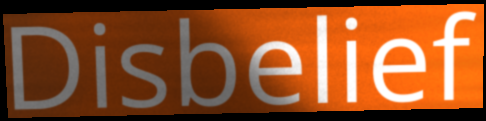
Disbelief